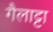
गैलाट्टा